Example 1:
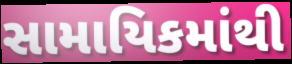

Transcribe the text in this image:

સામાયિકમાંથી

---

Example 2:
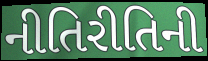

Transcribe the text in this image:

નીતિરીતિની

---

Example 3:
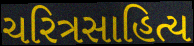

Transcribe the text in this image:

ચરિત્રસાહિત્ય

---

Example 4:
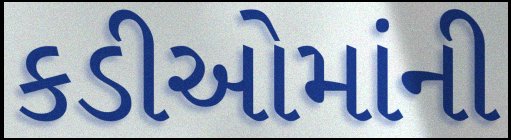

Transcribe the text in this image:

કડીઓમાંની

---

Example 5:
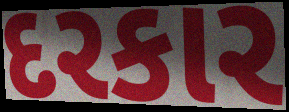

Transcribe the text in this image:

દરકાર